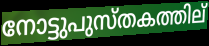
നോട്ടുപുസ്തകത്തില്